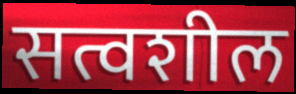
सत्वशील